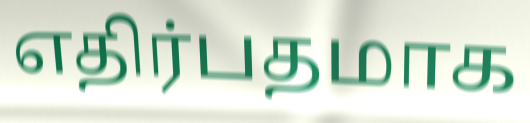
எதிர்பதமாக